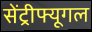
सेंट्रीफ्यूगल